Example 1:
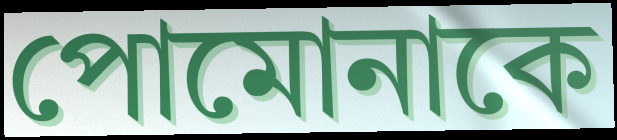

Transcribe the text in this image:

পোমোনাকে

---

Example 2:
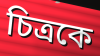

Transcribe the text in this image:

চিত্রকে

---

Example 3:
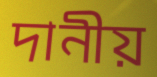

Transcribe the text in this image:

দানীয়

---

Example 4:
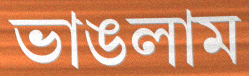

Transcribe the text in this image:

ভাঙলাম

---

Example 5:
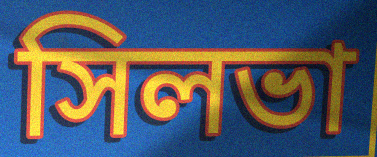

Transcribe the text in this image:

সিলভা